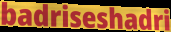
badriseshadri